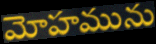
మోహమును